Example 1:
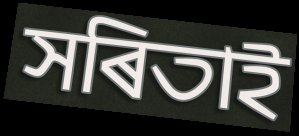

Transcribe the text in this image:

সৰিতাই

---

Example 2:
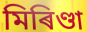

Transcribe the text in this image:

মিৰিণ্ডা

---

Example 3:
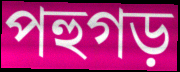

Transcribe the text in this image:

পহুগড়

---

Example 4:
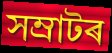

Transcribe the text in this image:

সম্ৰাটৰ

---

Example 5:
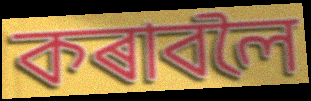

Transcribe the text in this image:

কৰাবলৈ